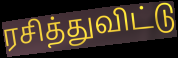
ரசித்துவிட்டு